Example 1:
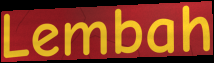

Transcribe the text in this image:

Lembah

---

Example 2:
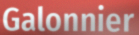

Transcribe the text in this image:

Galonnier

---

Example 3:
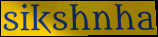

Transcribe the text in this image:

sikshnha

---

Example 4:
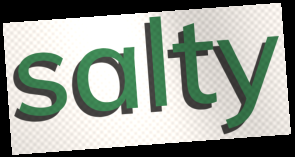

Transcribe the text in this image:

salty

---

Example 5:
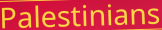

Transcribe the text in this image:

Palestinians